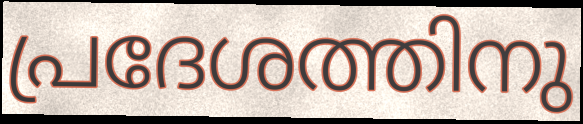
പ്രദേശത്തിനു